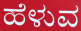
ಹೆಳುವ